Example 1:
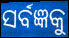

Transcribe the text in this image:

ସର୍ବଜ୍ଞକୁ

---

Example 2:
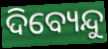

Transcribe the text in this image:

ଦିବ୍ୟେନ୍ଦୁ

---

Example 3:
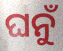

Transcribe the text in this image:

ଘନୁଁ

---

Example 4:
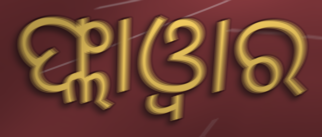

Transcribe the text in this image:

ଫ୍ଲାଓ୍ବାର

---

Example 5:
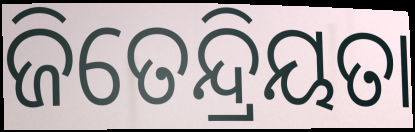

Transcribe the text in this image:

ଜିତେନ୍ଦ୍ରିୟତା